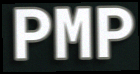
PMP